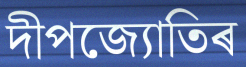
দীপজ্যোতিৰ